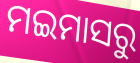
ମଇମାସରୁ